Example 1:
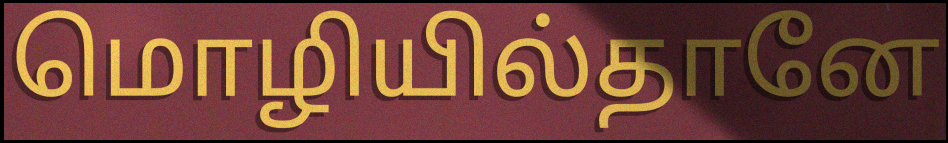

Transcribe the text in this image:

மொழியில்தானே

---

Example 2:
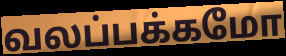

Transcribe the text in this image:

வலப்பக்கமோ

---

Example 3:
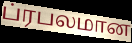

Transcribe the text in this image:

ப்ரபலமான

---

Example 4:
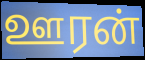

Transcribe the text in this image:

ஊரன்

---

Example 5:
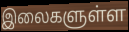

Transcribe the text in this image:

இலைகளுள்ள